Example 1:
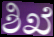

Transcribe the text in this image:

ಶಿಖೆ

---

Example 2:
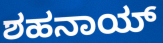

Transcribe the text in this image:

ಶಹನಾಯ್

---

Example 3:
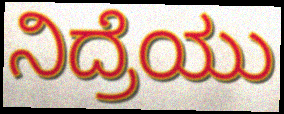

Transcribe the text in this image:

ನಿದ್ರೆಯು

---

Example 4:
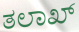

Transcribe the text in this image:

ತಲಾಖ್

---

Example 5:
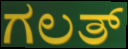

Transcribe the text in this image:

ಗಲತ್